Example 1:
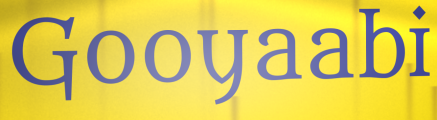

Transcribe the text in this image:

Gooyaabi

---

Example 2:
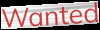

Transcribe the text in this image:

Wanted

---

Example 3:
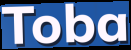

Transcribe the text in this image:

Toba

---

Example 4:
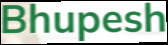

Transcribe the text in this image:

Bhupesh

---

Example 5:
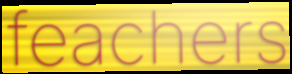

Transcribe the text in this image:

feachers